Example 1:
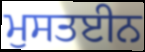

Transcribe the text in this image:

ਮੁਸਤਈਨ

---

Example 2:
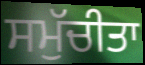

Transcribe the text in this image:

ਸਮੁੱਚੀਤਾ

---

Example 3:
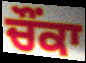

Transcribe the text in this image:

ਚੌਂਕਾ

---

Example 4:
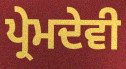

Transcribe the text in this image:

ਪ੍ਰੇਮਦੇਵੀ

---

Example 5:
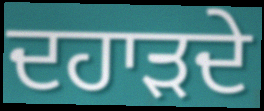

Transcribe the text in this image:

ਦਹਾੜਦੇ